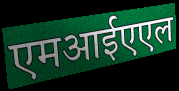
एमआईएएल